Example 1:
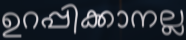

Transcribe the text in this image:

ഉറപ്പിക്കാനല്ല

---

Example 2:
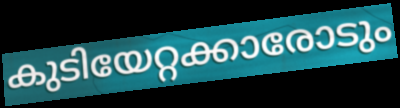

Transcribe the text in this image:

കുടിയേറ്റക്കാരോടും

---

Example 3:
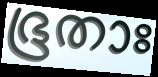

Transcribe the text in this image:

ഭൂതാഃ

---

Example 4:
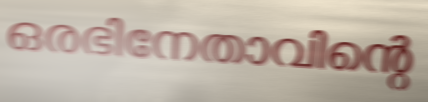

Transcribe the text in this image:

ഒരഭിനേതാവിന്റെ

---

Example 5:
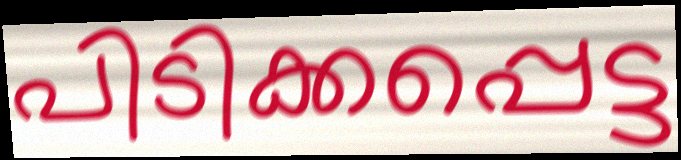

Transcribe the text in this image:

പിടിക്കപ്പെട്ട